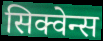
सिक्वेन्स